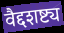
वैद्दशष्ट्य